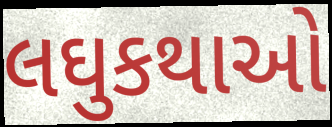
લઘુકથાઓ